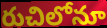
రుచిలోనూ